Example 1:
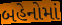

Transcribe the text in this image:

બહેનોમાં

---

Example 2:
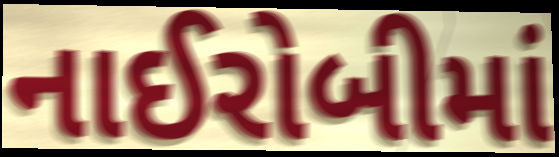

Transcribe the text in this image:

નાઈરોબીમાં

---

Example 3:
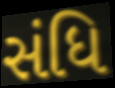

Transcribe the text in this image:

સંધિ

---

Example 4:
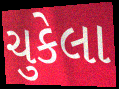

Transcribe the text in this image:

ચુકેલા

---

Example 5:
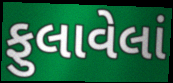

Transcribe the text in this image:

ફુલાવેલાં